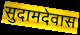
सुदामदेवास